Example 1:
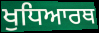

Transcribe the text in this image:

ਖੁਧਿਆਰਥ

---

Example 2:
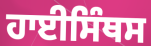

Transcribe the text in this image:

ਹਾਈਸਿੰਥਸ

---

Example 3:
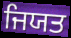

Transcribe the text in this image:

ਜਿਯਤ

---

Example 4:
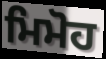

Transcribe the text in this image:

ਮਿਮੋਹ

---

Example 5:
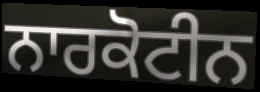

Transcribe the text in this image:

ਨਾਰਕੋਟੀਨ